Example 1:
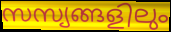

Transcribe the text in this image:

സസ്യങ്ങളിലും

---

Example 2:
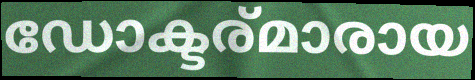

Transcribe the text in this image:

ഡോക്ടര്മാരായ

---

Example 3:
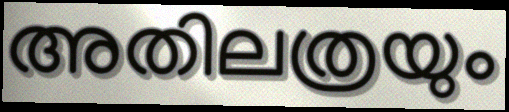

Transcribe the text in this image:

അതിലത്രയും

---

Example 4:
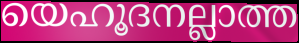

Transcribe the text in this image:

യെഹൂദനല്ലാത്ത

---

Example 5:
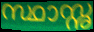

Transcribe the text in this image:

സ്ഥാസ്നു